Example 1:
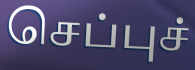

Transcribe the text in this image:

செப்புச்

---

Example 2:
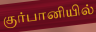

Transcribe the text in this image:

குர்பானியில்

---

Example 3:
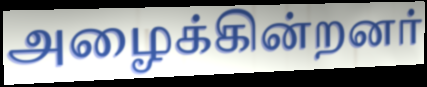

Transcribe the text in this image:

அழைக்கின்றனர்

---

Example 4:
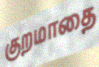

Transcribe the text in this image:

குறமாதை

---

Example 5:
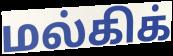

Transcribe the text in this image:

மல்கிக்